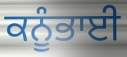
ਕਨੂੰਭਾਈ